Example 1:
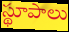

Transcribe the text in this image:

స్థూపాలు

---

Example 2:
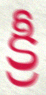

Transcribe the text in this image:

క్రీ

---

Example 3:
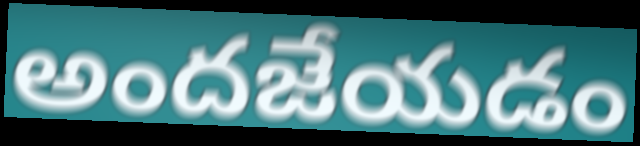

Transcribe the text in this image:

అందజేయడం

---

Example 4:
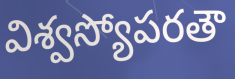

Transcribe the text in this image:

విశ్వస్యోపరతౌ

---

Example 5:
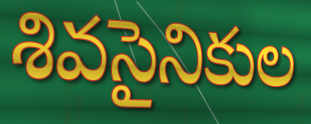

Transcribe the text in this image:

శివసైనికుల